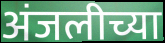
अंजलीच्या